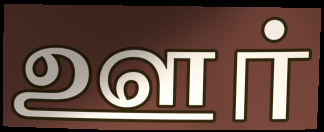
ஊர்